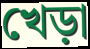
খেড়া